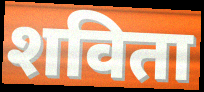
शविता